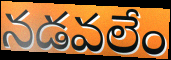
నడవలేం